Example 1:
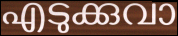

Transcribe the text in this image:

എടുക്കുവാ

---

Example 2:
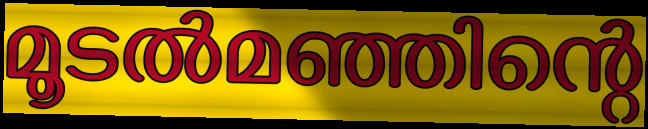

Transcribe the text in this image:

മൂടൽമഞ്ഞിന്റെ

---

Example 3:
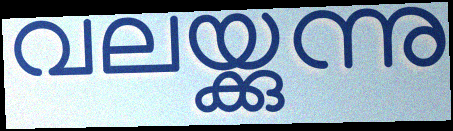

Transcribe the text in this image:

വലയ്ക്കുന്നു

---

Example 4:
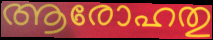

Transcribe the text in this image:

ആരോഹതു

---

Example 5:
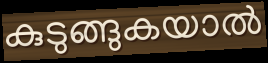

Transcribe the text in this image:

കുടുങ്ങുകയാൽ